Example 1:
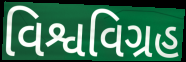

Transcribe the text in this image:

વિશ્વવિગ્રહ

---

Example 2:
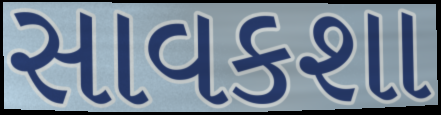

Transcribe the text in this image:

સાવકશા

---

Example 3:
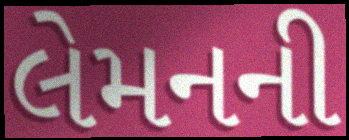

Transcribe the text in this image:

લેમનની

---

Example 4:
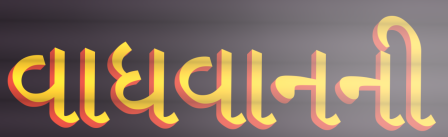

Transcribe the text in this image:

વાધવાનની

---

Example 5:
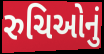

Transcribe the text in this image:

રુચિઓનું